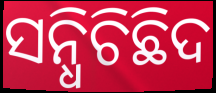
ସନ୍ଧିଚିଛିଦ